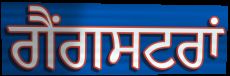
ਗੈਂਗਸਟਰਾਂ